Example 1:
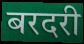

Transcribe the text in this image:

बरदरी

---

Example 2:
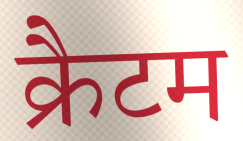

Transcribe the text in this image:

क्रैटम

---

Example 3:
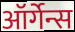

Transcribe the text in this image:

ऑर्गेन्स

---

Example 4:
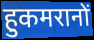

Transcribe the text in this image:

हुकमरानों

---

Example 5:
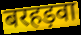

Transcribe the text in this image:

बरहड़वा